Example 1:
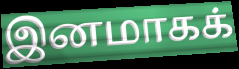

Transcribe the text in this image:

இனமாகக்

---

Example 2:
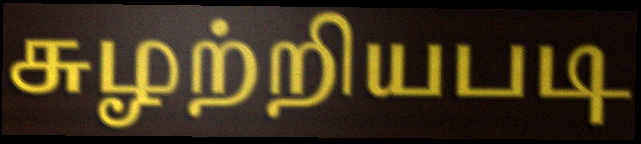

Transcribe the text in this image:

சுழற்றியபடி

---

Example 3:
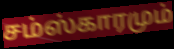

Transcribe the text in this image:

சம்ஸ்காரமும்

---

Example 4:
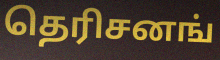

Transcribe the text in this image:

தெரிசனங்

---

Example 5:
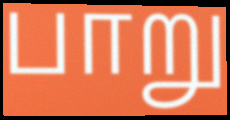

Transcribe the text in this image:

பாறு